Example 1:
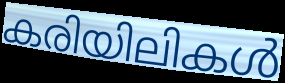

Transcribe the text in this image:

കരിയിലികൾ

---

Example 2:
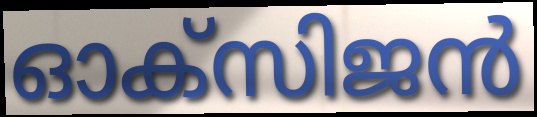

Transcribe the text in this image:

ഓക്സിജൻ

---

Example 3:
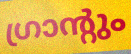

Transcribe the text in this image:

ഗ്രാന്റും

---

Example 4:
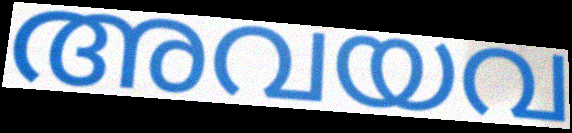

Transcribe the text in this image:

അവയവ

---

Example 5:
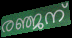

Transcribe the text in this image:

രഞ്ജന്